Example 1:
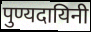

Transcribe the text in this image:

पुण्यदायिनी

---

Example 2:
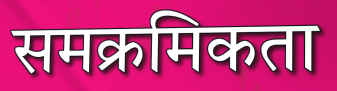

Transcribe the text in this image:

समक्रमिकता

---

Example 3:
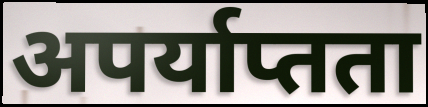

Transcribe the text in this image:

अपर्याप्तता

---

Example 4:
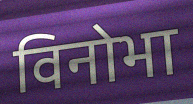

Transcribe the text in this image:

विनोभा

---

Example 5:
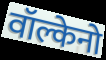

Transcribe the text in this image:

वॉल्केनो